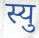
स्यु